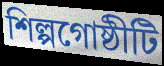
শিল্পগোষ্ঠীটি